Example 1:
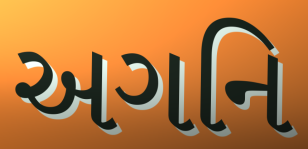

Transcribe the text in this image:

અગનિ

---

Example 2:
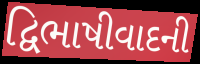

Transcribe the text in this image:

દ્વિભાષીવાદની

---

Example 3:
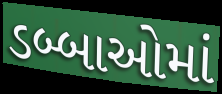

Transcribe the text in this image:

ડબ્બાઓમાં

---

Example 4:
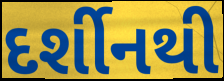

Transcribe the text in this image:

દર્શીનથી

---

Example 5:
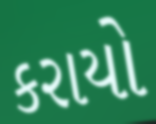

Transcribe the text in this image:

કરાયો